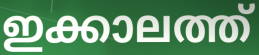
ഇക്കാലത്ത്